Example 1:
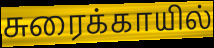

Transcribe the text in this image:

சுரைக்காயில்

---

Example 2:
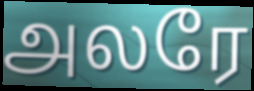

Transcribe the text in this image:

அலரே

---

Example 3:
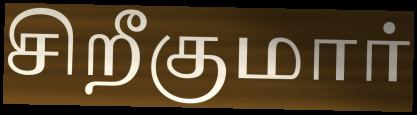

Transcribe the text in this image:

சிறீகுமார்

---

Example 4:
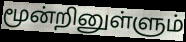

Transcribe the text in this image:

மூன்றினுள்ளும்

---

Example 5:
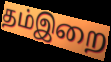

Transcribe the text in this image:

தம்இறை